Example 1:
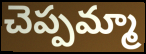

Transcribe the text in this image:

చెప్పమ్మా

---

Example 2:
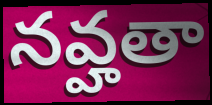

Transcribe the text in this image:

నవ్హతా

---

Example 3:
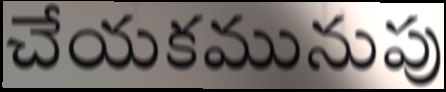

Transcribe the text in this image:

చేయకమునుపు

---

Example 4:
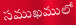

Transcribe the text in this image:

సముఖములో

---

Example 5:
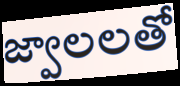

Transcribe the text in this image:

జ్వాలలతో